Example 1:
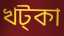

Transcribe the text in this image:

খট্‌কা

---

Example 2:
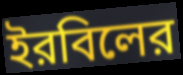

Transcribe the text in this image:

ইরবিলের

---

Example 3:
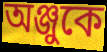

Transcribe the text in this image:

অঞ্জুকে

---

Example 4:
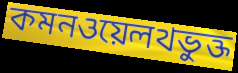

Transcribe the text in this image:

কমনওয়েলথভুক্ত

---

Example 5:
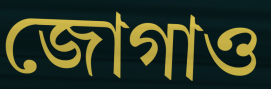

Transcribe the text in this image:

জোগাও